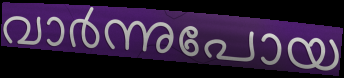
വാർന്നുപോയ